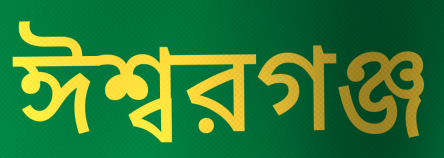
ঈশ্বরগঞ্জ